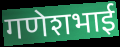
गणेशभाई